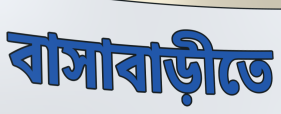
বাসাবাড়ীতে